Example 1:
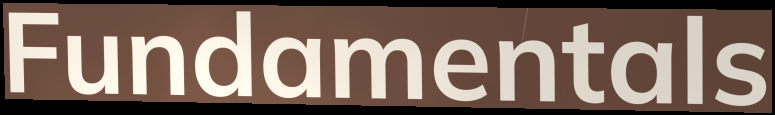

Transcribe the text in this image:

Fundamentals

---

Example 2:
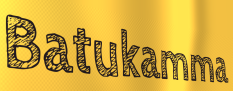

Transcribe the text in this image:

Batukamma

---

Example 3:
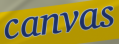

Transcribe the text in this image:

canvas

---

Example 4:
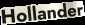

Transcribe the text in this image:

Hollander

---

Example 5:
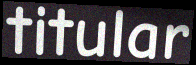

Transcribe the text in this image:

titular